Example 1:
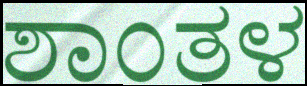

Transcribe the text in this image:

ಶಾಂತಳ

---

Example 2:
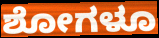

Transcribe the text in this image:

ಶೋಗಳೂ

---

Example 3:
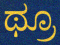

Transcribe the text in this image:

ಥ್ರೂ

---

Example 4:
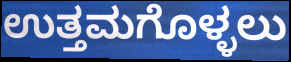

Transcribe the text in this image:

ಉತ್ತಮಗೊಳ್ಳಲು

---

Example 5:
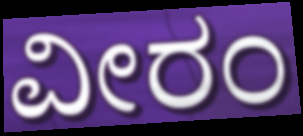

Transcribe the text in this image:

ವೀರಂ